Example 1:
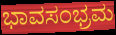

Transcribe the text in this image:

ಭಾವಸಂಭ್ರಮ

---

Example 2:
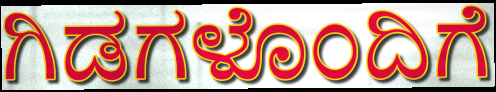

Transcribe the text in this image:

ಗಿಡಗಳೊಂದಿಗೆ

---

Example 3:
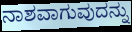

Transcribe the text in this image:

ನಾಶವಾಗುವುದನ್ನು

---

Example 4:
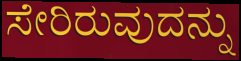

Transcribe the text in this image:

ಸೇರಿರುವುದನ್ನು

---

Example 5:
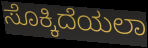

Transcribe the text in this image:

ಸೊಕ್ಕಿದೆಯಲಾ